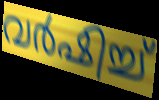
വർഷിച്ച്